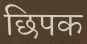
छिपक